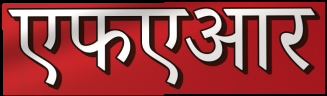
एफएआर